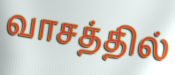
வாசத்தில்